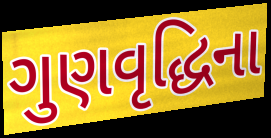
ગુણવૃદ્ધિના